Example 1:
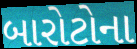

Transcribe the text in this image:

બારોટોના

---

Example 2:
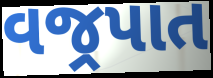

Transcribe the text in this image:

વજ્રપાત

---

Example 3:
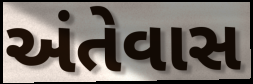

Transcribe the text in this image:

અંતેવાસ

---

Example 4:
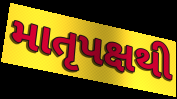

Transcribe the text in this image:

માતૃપક્ષથી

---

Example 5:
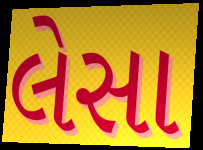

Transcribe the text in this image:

લેસા